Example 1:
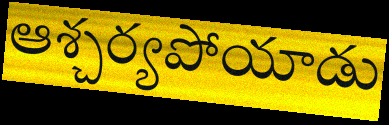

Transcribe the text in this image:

ఆశ్చర్యపోయాడు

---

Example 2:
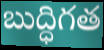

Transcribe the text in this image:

బుద్ధిగత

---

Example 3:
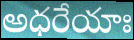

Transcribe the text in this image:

అధరేయాః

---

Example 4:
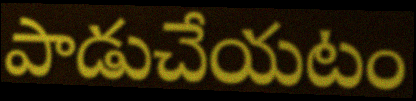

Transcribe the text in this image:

పాడుచేయటం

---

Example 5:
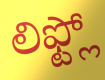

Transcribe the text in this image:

లిఫ్ట్లో